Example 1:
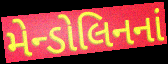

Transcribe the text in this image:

મેન્ડોલિનનાં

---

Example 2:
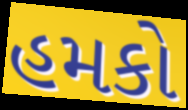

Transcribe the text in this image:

હમકો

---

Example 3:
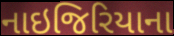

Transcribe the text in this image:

નાઇજિરિયાના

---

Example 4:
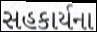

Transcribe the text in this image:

સહકાર્યના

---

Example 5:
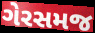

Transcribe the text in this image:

ગેરસમજ